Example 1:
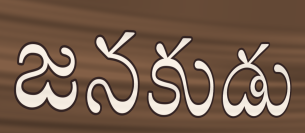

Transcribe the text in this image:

జనకుడు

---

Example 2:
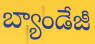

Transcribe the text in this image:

బ్యాండేజీ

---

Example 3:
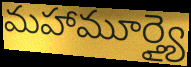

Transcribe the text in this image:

మహామూర్త్యై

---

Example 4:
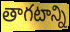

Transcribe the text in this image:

తాగటాన్ని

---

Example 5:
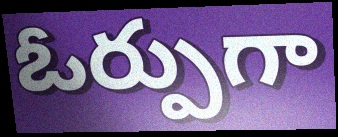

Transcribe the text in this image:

ఓర్పుగా